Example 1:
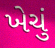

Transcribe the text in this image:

ખેચું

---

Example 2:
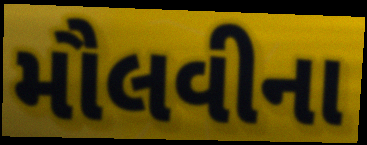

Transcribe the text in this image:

મૌલવીના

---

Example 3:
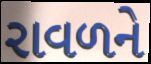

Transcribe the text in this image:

રાવળને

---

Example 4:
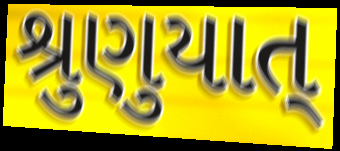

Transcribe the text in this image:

શ્રુણુયાત્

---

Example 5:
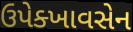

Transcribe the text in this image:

ઉપેક્ખાવસેન